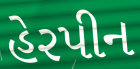
હેરપીન